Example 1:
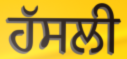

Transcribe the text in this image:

ਹੱਸਲੀ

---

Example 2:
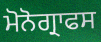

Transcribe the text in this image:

ਮੋਨੋਗ੍ਰਾਫਸ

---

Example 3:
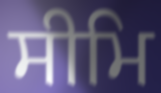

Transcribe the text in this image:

ਸੀਮਿ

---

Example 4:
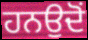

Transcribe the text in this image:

ਹਨਉਦੋਂ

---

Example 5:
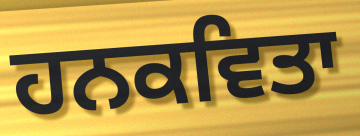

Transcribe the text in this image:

ਹਨਕਵਿਤਾ